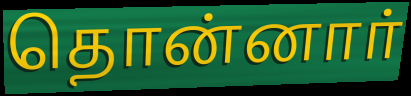
தொன்னார்